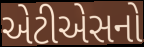
એટીએસનો